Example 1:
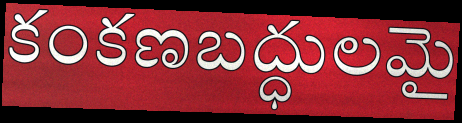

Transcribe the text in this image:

కంకణబద్ధులమై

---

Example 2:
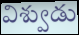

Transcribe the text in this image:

విశ్వుడు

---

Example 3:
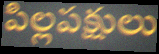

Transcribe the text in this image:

పిల్లపక్షులు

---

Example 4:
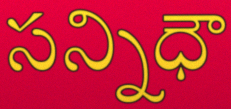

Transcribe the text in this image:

సన్నిధౌ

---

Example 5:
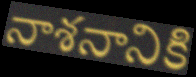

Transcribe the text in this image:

నాశనానికి